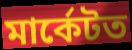
মাৰ্কেটত